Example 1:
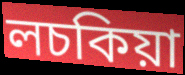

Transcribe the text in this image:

লচকিয়া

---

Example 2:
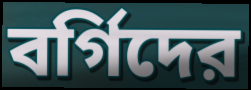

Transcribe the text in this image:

বর্গিদের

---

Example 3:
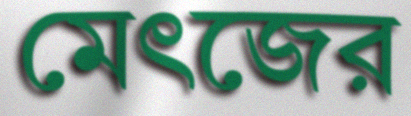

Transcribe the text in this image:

মেৎজের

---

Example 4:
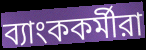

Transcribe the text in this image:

ব্যাংককর্মীরা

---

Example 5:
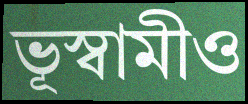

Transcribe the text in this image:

ভূস্বামীও